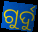
ଗୁର୍ଦୁ